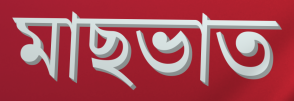
মাছভাত